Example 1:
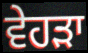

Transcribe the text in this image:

ਵੇਹੜਾ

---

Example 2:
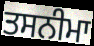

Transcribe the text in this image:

ਤਸਨੀਮਾ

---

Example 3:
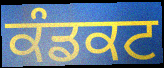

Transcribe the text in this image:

ਕੰਡਕਟ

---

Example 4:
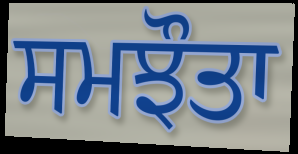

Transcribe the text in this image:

ਸਮਝੌਤਾ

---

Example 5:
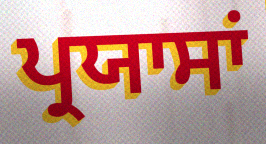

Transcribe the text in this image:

ਪ੍ਰਯਾਸਾਂ